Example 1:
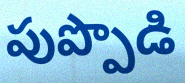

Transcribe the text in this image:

పుప్పొడి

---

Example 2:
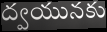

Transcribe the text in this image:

ద్వయునకు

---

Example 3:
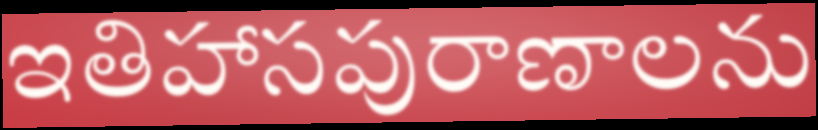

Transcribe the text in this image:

ఇతిహాసపురాణాలను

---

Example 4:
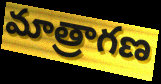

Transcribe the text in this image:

మాత్రాగణ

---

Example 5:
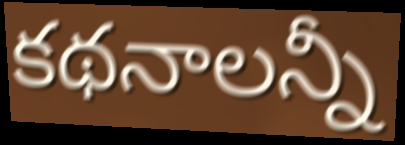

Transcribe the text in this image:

కథనాలన్నీ